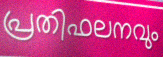
പ്രതിഫലനവും